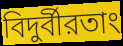
বিদুর্বীরতাং